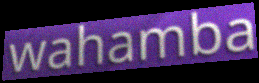
wahamba